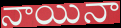
నాయినా